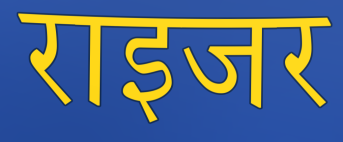
राइजर